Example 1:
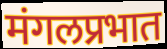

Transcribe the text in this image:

मंगलप्रभात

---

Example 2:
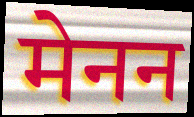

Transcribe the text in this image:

मेनन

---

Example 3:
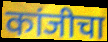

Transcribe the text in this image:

कांजीचा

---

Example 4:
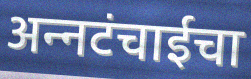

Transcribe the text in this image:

अन्नटंचाईचा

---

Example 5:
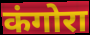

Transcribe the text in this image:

कंगोरा